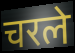
चरले